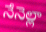
నేనెల్లా